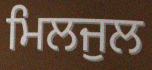
ਮਿਲਜੁਲ